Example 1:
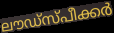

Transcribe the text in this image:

ലൗഡ്സ്പീക്കർ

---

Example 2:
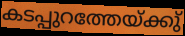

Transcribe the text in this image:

കടപ്പുറത്തേയ്ക്കു്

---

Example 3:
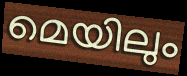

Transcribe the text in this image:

മെയിലും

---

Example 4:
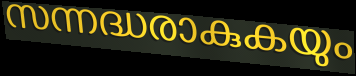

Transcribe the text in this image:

സന്നദ്ധരാകുകയും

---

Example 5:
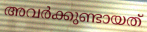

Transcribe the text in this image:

അവർക്കുണ്ടായത്